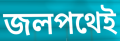
জলপথেই